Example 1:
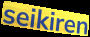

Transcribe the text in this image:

seikiren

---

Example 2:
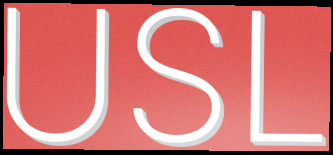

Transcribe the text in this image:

USL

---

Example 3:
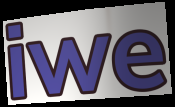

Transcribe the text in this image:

iwe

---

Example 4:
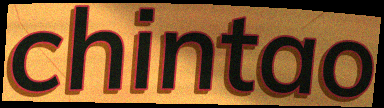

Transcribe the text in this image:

chintao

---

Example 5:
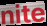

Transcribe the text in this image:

nite